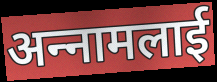
अन्‍नामलाई